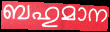
ബഹുമാന